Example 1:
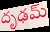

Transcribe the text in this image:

దృఢమ్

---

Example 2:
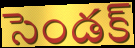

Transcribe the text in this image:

సెండక్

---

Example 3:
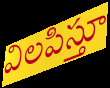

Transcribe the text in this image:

విలపిస్తూ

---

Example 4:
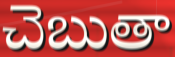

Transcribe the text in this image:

చెబుతా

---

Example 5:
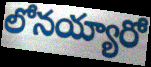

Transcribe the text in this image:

లోనయ్యారో